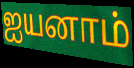
ஐயனாம்